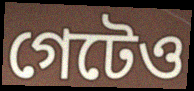
গেটেও